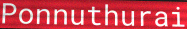
Ponnuthurai